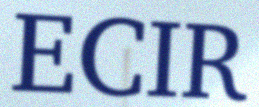
ECIR